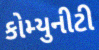
કોમ્યુનીટી